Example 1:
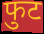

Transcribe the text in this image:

फुट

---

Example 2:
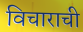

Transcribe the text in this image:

विचाराची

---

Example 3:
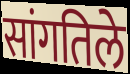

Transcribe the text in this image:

सांगतिले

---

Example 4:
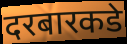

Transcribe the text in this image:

दरबारकडे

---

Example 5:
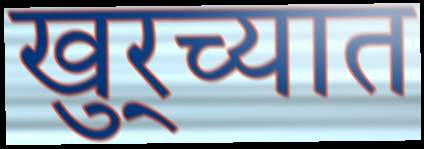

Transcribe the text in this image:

खुर्च्यात